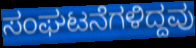
ಸಂಘಟನೆಗಳಿದ್ದವು